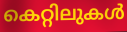
കെറ്റിലുകൾ